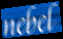
nebel